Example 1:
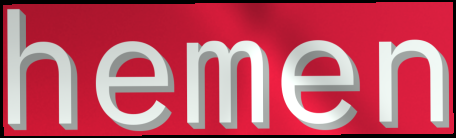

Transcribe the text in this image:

hemen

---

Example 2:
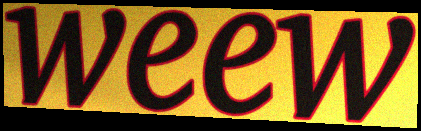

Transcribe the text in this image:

weew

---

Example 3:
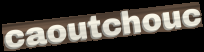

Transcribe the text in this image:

caoutchouc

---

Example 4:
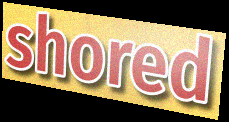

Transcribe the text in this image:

shored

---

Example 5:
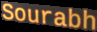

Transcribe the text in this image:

Sourabh